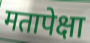
मतापेक्षा